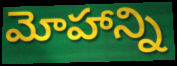
మోహాన్ని